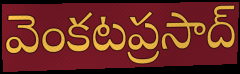
వెంకటప్రసాద్